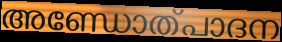
അണ്ഡോത്പാദന